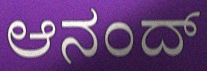
ಆನಂದ್